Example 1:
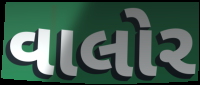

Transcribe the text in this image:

વાલોર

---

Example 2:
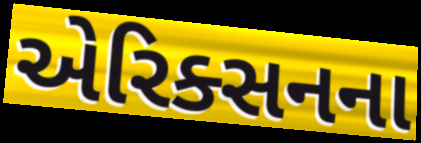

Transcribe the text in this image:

એરિક્સનના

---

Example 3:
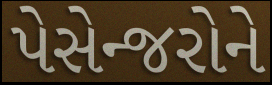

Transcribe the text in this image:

પેસેન્જરોને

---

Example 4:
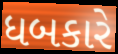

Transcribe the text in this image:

ધબકારે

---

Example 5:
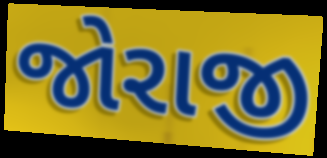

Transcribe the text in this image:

જોરાજી